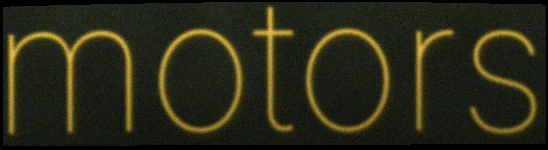
motors